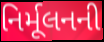
નિર્મૂલનની